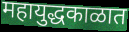
महायुद्धकाळात